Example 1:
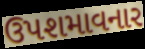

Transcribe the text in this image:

ઉપશમાવનાર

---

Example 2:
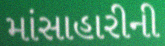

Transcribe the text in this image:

માંસાહારીની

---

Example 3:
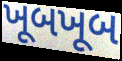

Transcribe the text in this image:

ખૂબખૂબ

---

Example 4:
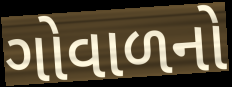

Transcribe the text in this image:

ગોવાળનો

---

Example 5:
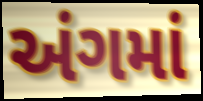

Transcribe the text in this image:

અંગમાં